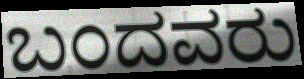
ಬಂದವರು